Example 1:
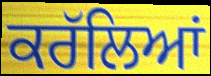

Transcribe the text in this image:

ਕਰੱਲਿਆਂ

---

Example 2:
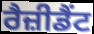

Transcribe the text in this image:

ਰੈਜ਼ੀਡੈਂਟ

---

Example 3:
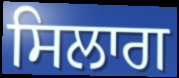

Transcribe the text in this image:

ਸਿਲਾਗ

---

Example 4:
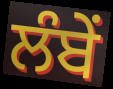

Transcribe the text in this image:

ਲੰਬੇਂ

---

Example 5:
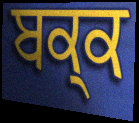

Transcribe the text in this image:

ਬਕ੍ਕ